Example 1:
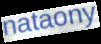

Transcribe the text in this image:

nataony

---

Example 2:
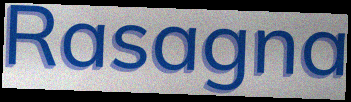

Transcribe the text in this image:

Rasagna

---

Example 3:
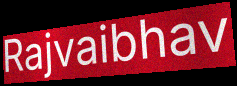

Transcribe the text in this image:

Rajvaibhav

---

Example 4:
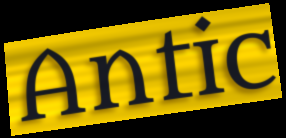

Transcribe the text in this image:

Antic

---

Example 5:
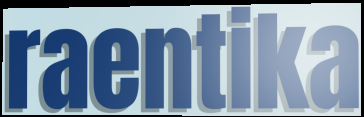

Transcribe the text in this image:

raentika